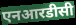
एनआरडीसी